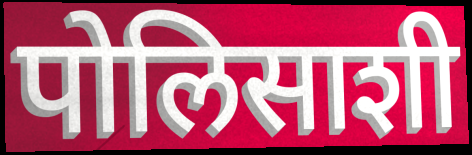
पोलिसाशी